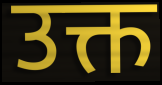
उक्त